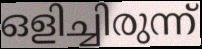
ഒളിച്ചിരുന്ന്